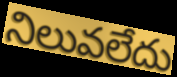
నిలువలేదు